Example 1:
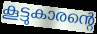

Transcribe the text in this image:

കൂട്ടുകാരന്റെ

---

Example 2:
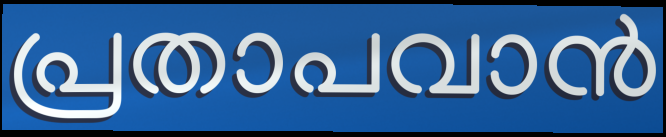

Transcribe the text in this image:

പ്രതാപവാൻ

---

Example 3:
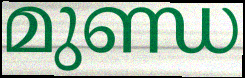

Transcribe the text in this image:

മുണ്ഡ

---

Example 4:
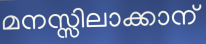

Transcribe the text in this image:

മനസ്സിലാക്കാന്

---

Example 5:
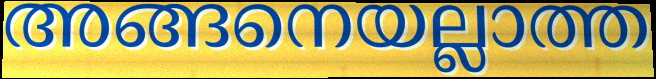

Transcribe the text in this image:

അങ്ങനെയല്ലാത്ത